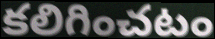
కలిగించటం